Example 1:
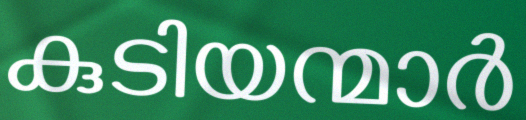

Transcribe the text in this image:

കുടിയന്മാർ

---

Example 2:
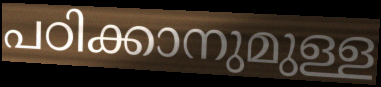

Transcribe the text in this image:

പഠിക്കാനുമുള്ള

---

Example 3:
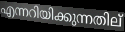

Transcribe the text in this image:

എന്നറിയിക്കുന്നതില്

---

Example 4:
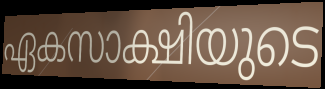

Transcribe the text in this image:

ഏകസാക്ഷിയുടെ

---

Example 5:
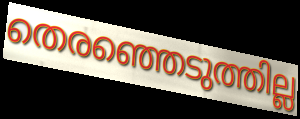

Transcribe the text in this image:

തെരഞ്ഞെടുത്തില്ല